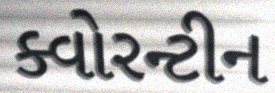
ક્વોરન્ટીન